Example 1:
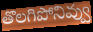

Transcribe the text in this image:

తొలగిపోనివ్వు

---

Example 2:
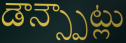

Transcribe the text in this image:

డౌన్స్పౌట్లు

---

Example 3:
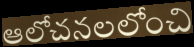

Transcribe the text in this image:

ఆలోచనలలోంచి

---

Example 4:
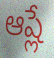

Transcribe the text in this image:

ఆష్లే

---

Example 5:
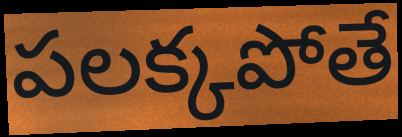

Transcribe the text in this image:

పలక్కపోతే